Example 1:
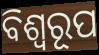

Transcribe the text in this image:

ବିଶ୍ଵରୂପ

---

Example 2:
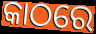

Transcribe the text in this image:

କାଠରେ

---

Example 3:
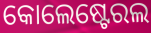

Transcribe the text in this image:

କୋଲେଷ୍ଟେରଲ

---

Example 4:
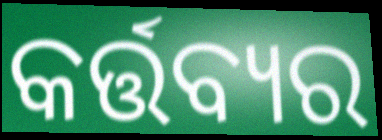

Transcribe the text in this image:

କର୍ତ୍ତବ୍ୟର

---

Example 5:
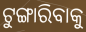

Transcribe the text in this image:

ଟୁଙ୍ଗାରିବାକୁ